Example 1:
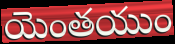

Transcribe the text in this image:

యెంతయుం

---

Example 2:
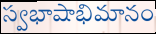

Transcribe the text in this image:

స్వభాషాభిమానం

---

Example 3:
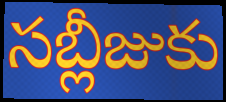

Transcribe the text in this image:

సబ్లీజుకు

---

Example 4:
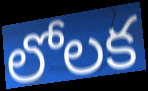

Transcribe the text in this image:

లోలక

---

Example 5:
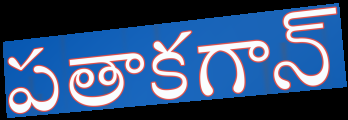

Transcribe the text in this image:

పతాకగాన్